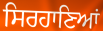
ਸਿਰਹਾਣਿਆਂ